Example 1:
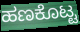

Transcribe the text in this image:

ಹಣಕೊಟ್ಟ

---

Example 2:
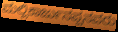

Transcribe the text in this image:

ಮಲ್ಲಿಕಾರ್ಜುನಪ್ಪನವರು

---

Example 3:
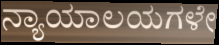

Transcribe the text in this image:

ನ್ಯಾಯಾಲಯಗಳೇ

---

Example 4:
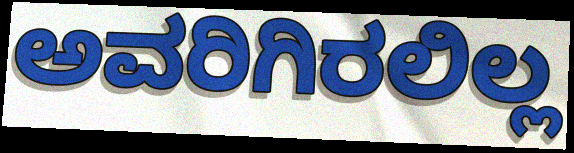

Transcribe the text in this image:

ಅವರಿಗಿರಲಿಲ್ಲ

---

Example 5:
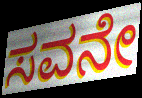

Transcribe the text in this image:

ಸವನೇ